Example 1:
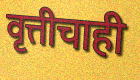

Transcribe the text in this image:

वृत्तीचाही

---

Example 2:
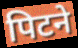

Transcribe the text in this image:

पिटने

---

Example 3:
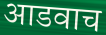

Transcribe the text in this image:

आडवाच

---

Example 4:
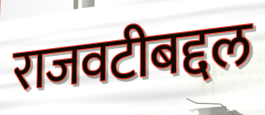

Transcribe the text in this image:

राजवटीबद्दल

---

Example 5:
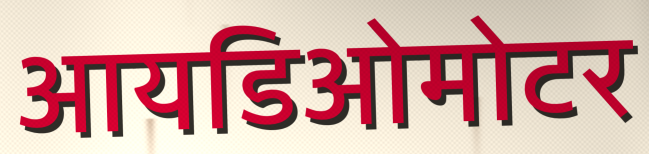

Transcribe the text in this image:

आयडिओमोटर